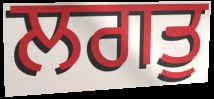
ਲਗਤੁ